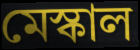
মেস্কাল